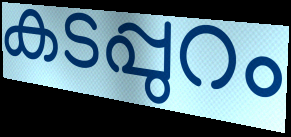
കടപ്പുറം